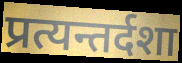
प्रत्यन्तर्दशा